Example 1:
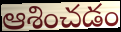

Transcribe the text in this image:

ఆశించడం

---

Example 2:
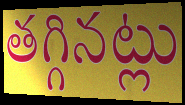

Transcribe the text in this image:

తగ్గినట్లు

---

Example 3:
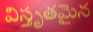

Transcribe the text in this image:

విస్తృతమైన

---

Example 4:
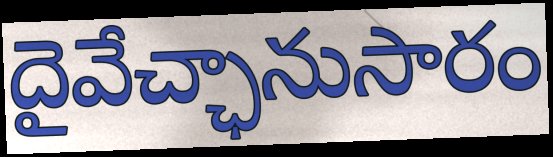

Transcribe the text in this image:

దైవేచ్ఛానుసారం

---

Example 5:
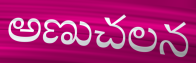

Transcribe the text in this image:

అణుచలన